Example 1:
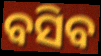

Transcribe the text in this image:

ବସିବ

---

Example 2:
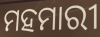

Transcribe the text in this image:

ମହମାରୀ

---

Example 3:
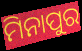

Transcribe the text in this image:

ମିନାପୁର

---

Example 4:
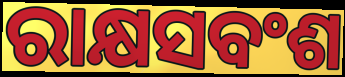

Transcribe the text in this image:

ରାକ୍ଷସବଂଶ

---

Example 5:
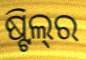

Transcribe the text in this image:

ଷ୍ଟିଲ୍‌ର